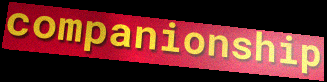
companionship